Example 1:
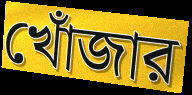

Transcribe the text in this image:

খোঁজার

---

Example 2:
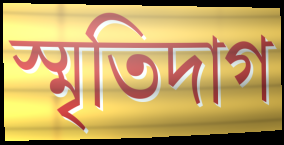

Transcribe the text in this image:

স্মৃতিদাগ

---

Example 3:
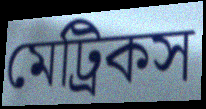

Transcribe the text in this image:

মেট্রিকস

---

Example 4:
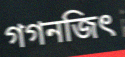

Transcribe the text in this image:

গগনজিৎ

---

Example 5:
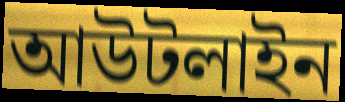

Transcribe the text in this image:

আউটলাইন